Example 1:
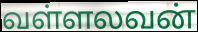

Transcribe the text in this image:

வள்ளலவன்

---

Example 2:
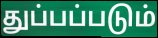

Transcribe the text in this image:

துப்பப்படும்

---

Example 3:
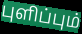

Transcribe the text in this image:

புளிப்பும்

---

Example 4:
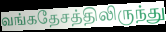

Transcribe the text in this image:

வங்கதேசத்திலிருந்து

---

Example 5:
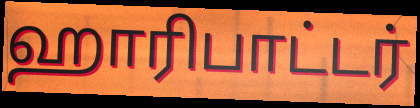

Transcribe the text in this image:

ஹாரிபாட்டர்